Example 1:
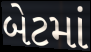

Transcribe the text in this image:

બેટમાં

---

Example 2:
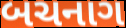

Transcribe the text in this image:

બચનાગ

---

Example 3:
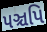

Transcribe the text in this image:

પઞ્ચપિ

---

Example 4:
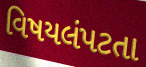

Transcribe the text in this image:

વિષયલંપટતા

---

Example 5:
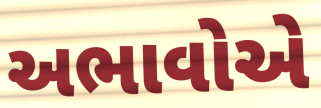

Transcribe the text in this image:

અભાવોએ